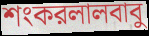
শংকরলালবাবু